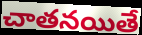
చాతనయితే